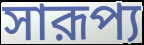
সারূপ্য